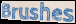
Brushes